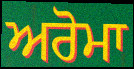
ਅਰੋਮਾ